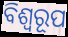
ବିଶ୍ୱରୂପ